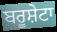
ਬਰੂਸ਼ੇਟਾ